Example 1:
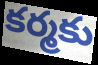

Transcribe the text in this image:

కర్మకు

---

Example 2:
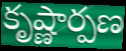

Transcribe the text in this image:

కృష్ణార్పణ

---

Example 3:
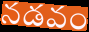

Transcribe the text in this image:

నడవం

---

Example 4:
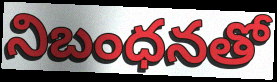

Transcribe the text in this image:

నిబంధనతో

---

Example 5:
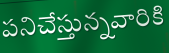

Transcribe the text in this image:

పనిచేస్తున్నవారికి